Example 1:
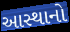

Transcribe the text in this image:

આસ્થાનો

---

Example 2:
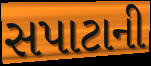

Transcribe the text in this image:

સપાટાની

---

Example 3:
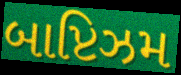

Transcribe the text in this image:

બાપ્ટિઝમ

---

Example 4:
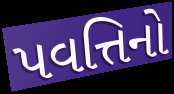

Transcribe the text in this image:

પવત્તિનો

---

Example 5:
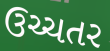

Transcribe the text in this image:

ઉચ્ચતર